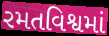
રમતવિશ્વમાં